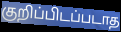
குறிப்பிடப்படாத